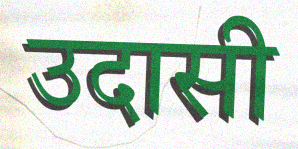
उदासी